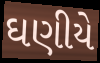
ઘણીયે